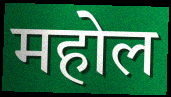
महोल